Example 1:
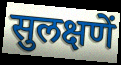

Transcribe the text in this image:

सुलक्षणें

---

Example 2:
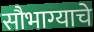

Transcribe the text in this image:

सौभाग्याचे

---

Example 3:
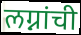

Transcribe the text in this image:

लग्नांची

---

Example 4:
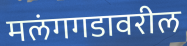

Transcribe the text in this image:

मलंगगडावरील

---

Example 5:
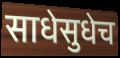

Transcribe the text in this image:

साधेसुधेच